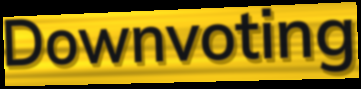
Downvoting